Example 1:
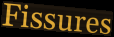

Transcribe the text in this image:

Fissures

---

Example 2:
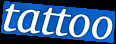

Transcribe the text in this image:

tattoo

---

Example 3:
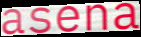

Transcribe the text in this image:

asena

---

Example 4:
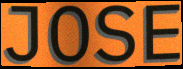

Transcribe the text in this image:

JOSE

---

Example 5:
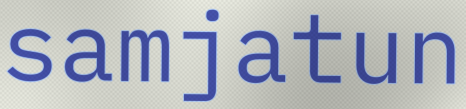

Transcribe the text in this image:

samjatun